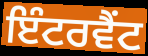
ਇੰਟਰਵੈਂਟ